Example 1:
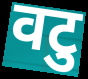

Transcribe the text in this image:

वटु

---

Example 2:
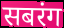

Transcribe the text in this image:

सबरंग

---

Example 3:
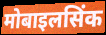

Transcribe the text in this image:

मोबाइलसिंक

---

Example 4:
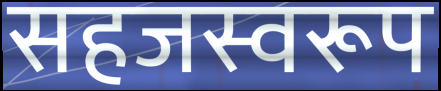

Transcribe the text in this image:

सहजस्वरूप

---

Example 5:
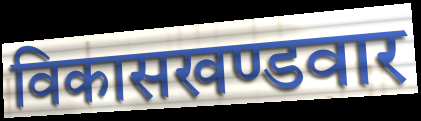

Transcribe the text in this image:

विकासखण्‍डवार